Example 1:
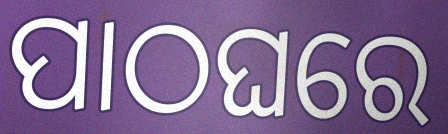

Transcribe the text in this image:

ପାଠଘରେ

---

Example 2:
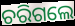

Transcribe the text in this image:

ଚରିଗଲେ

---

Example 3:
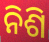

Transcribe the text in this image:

ନିଶି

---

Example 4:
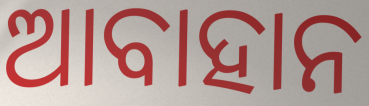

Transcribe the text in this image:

ଆବାହାନ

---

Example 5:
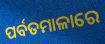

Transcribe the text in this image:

ପର୍ବତମାଳାରେ